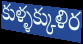
కుళ్ళక్కుళిర